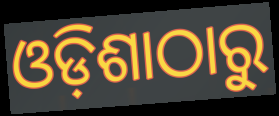
ଓଡ଼ିଶାଠାରୁ